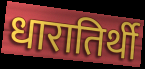
धारातिर्थी